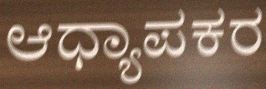
ಆಧ್ಯಾಪಕರ